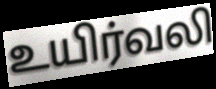
உயிர்வலி